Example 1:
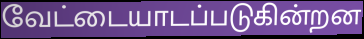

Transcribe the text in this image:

வேட்டையாடப்படுகின்றன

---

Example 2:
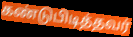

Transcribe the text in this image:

கண்டுபிடித்தவர்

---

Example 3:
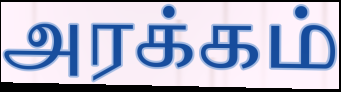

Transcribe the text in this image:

அரக்கம்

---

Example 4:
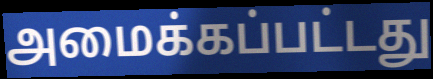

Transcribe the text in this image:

அமைக்கப்பட்டது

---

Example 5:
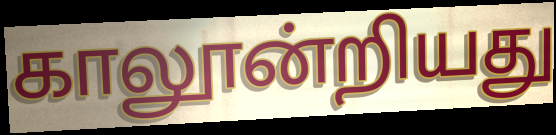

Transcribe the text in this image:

காலூன்றியது